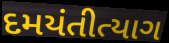
દમયંતીત્યાગ